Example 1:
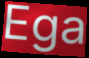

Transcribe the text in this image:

Ega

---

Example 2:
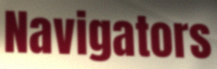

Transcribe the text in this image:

Navigators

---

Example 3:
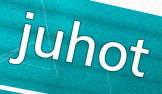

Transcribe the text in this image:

juhot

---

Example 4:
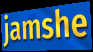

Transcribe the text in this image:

jamshe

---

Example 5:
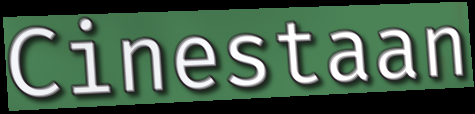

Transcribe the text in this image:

Cinestaan